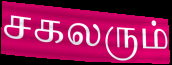
சகலரும்